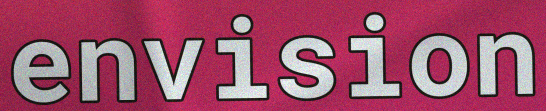
envision